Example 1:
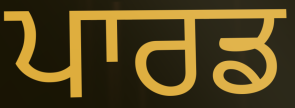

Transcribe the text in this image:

ਪਾਰਡ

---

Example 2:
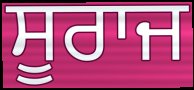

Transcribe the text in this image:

ਸੂਰਾਜ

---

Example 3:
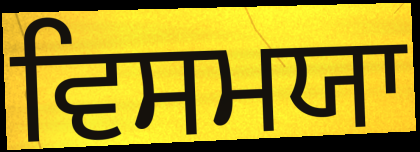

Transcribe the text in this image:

ਵਿਸਮਯਾ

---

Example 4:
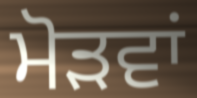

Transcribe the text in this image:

ਮੋੜਵਾਂ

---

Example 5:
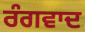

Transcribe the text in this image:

ਰੰਗਵਾਦ